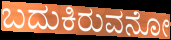
ಬದುಕಿರುವನೋ